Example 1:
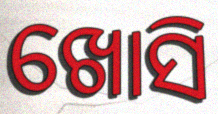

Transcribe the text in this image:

ଖୋସି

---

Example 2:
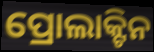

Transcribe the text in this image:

ପ୍ରୋଲାକ୍ଟିନ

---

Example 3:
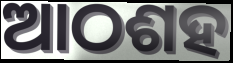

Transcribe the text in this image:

ଆଠଶହ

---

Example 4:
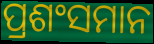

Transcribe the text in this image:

ପ୍ରଶଂସମାନ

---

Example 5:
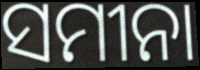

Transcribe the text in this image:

ସମୀନା